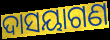
ଦାସୟାଗଣ